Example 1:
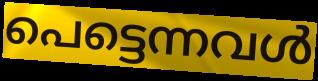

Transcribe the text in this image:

പെട്ടെന്നവൾ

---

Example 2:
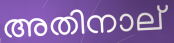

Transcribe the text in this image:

അതിനാല്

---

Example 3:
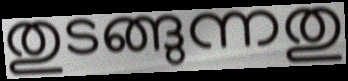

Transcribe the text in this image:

തുടങ്ങുന്നതു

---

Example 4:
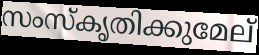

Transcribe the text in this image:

സംസ്കൃതിക്കുമേല്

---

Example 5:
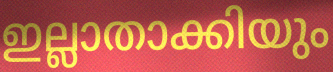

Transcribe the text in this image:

ഇല്ലാതാക്കിയും